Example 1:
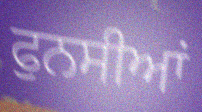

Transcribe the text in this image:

ਫੁਨਸੀਆਂ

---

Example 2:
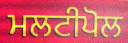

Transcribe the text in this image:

ਮਲਟੀਪੋਲ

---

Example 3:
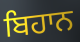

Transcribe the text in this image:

ਬਿਹਾਨ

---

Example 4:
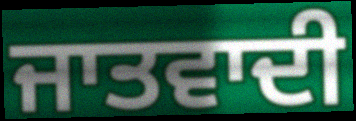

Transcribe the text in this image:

ਜਾਤਵਾਦੀ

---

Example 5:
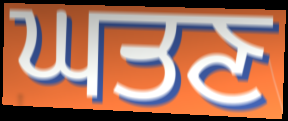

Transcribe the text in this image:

ਘਤਣ